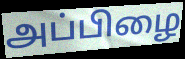
அப்பிழை